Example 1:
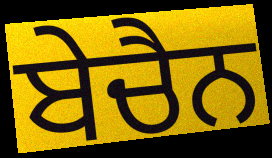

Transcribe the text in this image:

ਬੇਚੈਨ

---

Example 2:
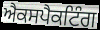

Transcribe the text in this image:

ਐਕਸਪੈਕਟਿੰਗ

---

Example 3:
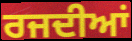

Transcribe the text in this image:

ਰਜਦੀਆਂ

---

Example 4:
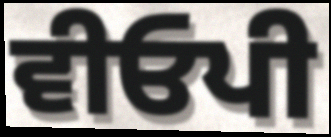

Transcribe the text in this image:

ਵੀਓਪੀ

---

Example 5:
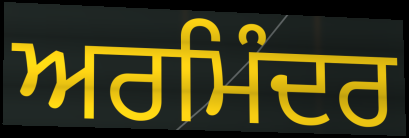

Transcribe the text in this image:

ਅਰਮਿੰਦਰ